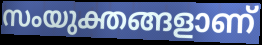
സംയുക്തങ്ങളാണ്